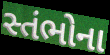
સ્તંભોના